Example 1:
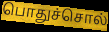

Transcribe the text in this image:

பொதுச்சொல்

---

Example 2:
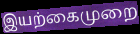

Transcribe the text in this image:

இயற்கைமுறை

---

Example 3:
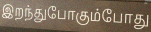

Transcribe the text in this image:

இறந்துபோகும்போது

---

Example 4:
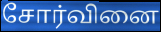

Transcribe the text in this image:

சோர்வினை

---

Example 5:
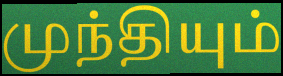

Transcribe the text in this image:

முந்தியும்